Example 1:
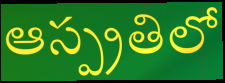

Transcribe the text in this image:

ఆస్ప్రతిలో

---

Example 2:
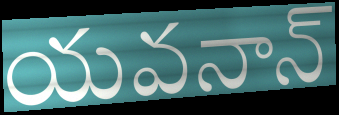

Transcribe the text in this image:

యవనాన్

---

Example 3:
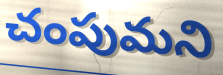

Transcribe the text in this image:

చంపుమని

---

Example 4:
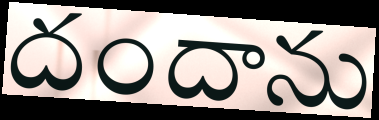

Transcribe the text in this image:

దందాను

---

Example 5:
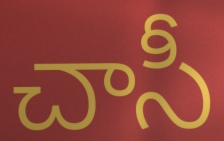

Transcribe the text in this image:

చాసీ